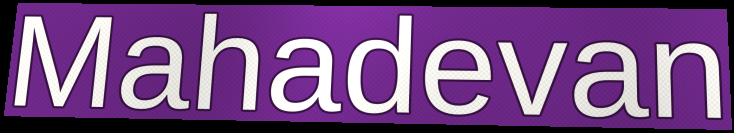
Mahadevan